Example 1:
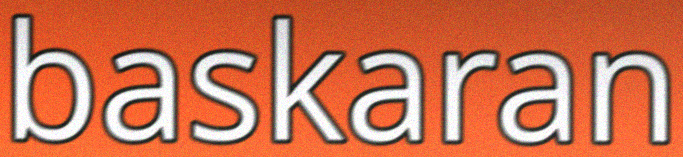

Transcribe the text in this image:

baskaran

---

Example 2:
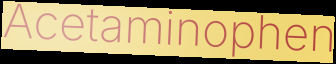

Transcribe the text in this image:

Acetaminophen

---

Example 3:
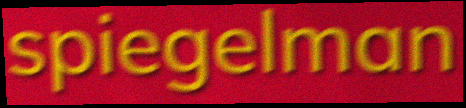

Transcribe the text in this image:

spiegelman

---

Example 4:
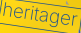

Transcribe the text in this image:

heritager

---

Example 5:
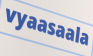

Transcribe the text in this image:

vyaasaala